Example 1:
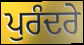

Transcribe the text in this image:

ਪੁਰੰਦਰੇ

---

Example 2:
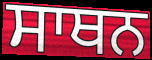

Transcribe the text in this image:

ਸਾਥਨ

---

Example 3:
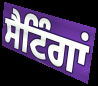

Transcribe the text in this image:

ਸੈਟਿੰਗਾਂ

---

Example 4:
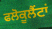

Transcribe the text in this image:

ਫਲੋਕੂਲੈਂਟਾਂ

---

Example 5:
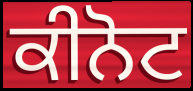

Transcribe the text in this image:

ਕੀਨੋਟ